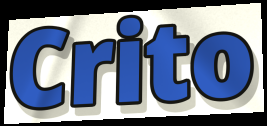
Crito